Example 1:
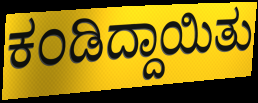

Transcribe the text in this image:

ಕಂಡಿದ್ದಾಯಿತು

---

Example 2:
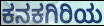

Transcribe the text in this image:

ಕನಕಗಿರಿಯ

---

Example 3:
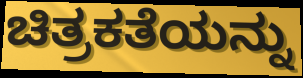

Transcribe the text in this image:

ಚಿತ್ರಕತೆಯನ್ನು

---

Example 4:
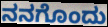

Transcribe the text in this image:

ನನಗೊಂದು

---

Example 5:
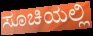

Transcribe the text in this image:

ಸೂಚಿಯಲ್ಲಿ